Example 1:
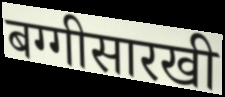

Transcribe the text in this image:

बग्गीसारखी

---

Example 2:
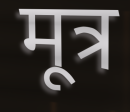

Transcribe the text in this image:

मूत्र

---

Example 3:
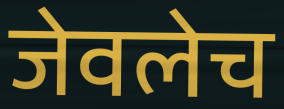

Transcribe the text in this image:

जेवलेच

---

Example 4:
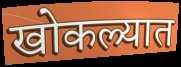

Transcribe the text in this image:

खोकल्यात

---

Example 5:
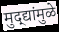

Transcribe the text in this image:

मुद्द्यांमुळे